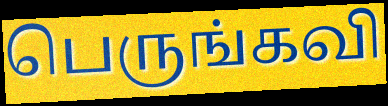
பெருங்கவி